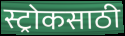
स्ट्रोकसाठी